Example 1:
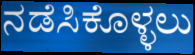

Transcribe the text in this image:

ನಡೆಸಿಕೊಳ್ಳಲು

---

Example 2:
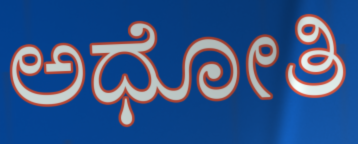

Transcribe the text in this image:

ಅಧೋತಿ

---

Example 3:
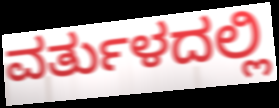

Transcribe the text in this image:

ವರ್ತುಳದಲ್ಲಿ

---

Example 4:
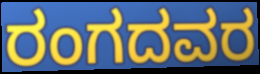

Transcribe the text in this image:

ರಂಗದವರ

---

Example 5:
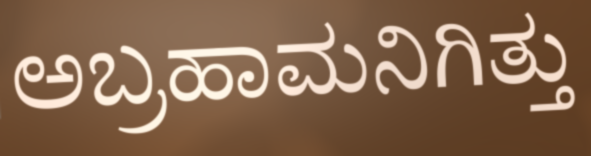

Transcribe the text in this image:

ಅಬ್ರಹಾಮನಿಗಿತ್ತು